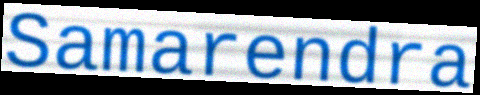
Samarendra